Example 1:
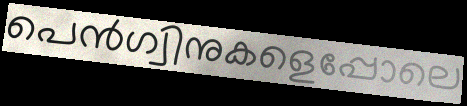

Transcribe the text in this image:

പെൻഗ്വിനുകളെപ്പോലെ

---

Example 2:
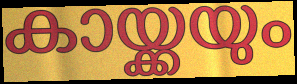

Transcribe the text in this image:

കായ്ക്കയും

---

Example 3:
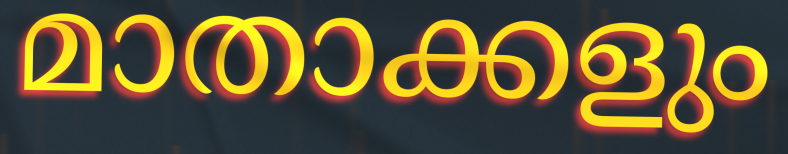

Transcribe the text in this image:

മാതാക്കളും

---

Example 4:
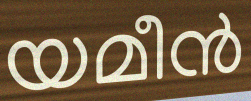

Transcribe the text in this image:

യമീൻ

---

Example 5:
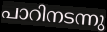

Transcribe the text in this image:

പാറിനടന്നു